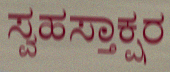
ಸ್ವಹಸ್ತಾಕ್ಷರ